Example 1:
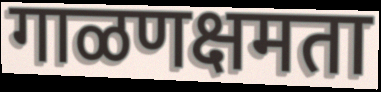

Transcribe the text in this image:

गाळणक्षमता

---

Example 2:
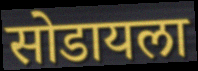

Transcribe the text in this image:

सोडायला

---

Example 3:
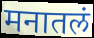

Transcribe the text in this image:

मनातलं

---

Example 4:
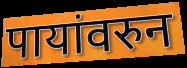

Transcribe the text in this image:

पायांवरुन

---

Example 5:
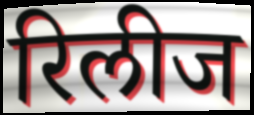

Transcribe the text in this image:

रिलीज